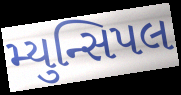
મ્યુન્સિપલ